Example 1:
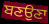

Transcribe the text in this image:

ਬਣਉਣਾ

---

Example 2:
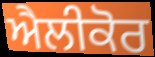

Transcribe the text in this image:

ਐਲੀਕੋਰ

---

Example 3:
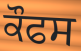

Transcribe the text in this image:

ਕੌਫਸ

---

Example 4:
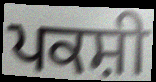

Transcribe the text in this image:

ਪਕਸ਼ੀ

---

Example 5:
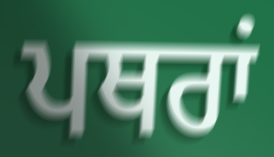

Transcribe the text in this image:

ਪਥਰਾਂ